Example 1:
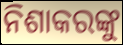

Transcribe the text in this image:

ନିଶାକରଙ୍କୁ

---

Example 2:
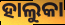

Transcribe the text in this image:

ହାଲୁକା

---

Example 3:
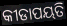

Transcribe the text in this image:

କୀଡାପୟତି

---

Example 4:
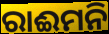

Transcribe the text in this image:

ରାଈମନି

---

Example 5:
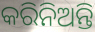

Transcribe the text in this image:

କରିନିଅନ୍ତି